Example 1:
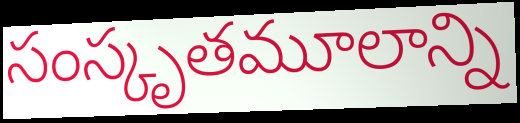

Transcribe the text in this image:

సంస్కృతమూలాన్ని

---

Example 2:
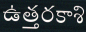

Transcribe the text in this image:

ఉత్తరకాశి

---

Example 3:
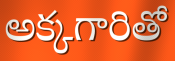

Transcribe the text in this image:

అక్కగారితో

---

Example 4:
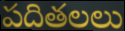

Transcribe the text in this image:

పదితలలు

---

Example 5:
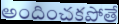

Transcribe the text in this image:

అందించకపోతే